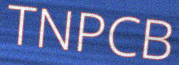
TNPCB